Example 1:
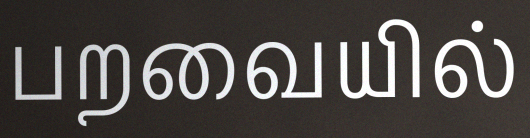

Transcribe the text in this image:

பறவையில்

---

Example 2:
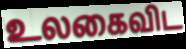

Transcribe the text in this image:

உலகைவிட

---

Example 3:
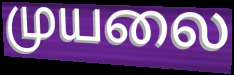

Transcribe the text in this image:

முயலை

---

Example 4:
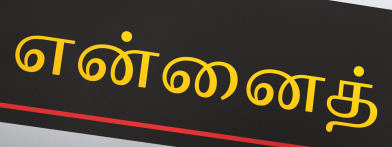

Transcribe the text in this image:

என்னைத்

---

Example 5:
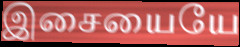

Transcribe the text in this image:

இசையையே